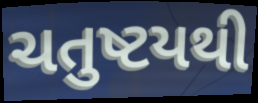
ચતુષ્ટયથી